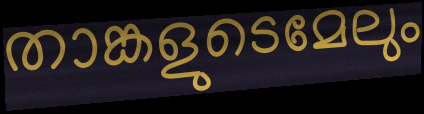
താങ്കളുടെമേലും